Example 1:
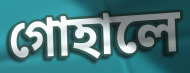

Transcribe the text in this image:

গোহালে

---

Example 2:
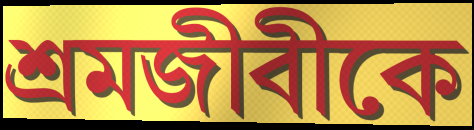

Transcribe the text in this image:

শ্রমজীবীকে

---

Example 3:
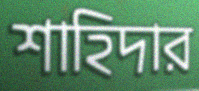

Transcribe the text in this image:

শাহিদার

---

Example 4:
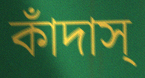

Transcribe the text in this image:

কাঁদাস্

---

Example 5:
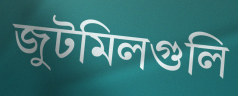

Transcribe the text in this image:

জুটমিলগুলি